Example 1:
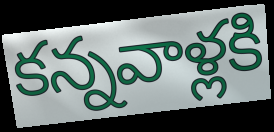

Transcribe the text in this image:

కన్నవాళ్లకి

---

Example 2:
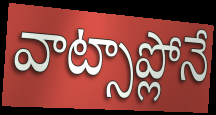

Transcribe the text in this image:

వాట్సాప్లోనే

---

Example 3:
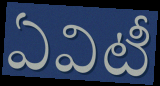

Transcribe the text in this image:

ఏవిటీ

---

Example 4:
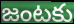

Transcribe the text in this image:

జంటకు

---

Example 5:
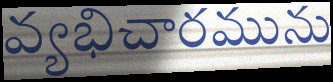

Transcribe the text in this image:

వ్యభిచారమును